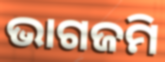
ଭାଗଜମି